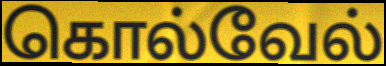
கொல்வேல்